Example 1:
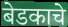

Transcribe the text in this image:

बेडकाचे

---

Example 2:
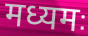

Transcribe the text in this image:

मध्यमः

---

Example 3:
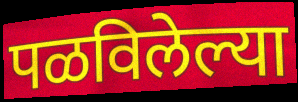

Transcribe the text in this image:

पळविलेल्या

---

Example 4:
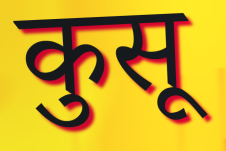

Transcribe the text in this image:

कुसू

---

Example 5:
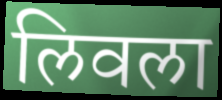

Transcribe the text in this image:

लिवला